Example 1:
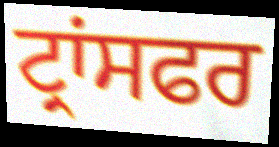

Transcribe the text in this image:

ਟ੍ਰਾਂਸਫਰ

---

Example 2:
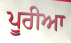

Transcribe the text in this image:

ਪੂਰੀਆ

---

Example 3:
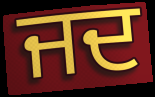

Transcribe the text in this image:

ਜਦ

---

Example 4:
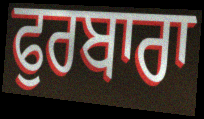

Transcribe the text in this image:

ਫੁਰਬਾਰਾ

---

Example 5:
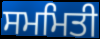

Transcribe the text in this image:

ਸਮਮਿਤੀ